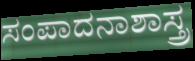
ಸಂಪಾದನಾಶಾಸ್ತ್ರ